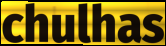
chulhas